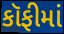
કૉફીમાં